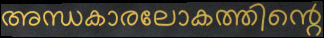
അന്ധകാരലോകത്തിന്റെ